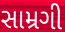
સામ્રગી